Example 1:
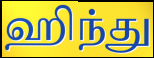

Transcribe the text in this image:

ஹிந்து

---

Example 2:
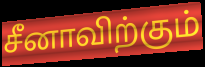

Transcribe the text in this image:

சீனாவிற்கும்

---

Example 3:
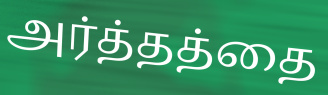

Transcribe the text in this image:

அர்த்தத்தை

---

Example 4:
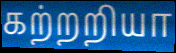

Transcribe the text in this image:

கற்றறியா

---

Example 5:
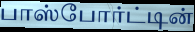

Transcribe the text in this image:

பாஸ்போர்ட்டின்